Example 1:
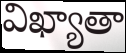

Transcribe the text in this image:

విఖ్యాతా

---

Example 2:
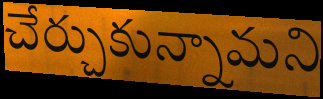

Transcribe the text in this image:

చేర్చుకున్నామని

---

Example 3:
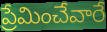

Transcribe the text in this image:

ప్రేమించేవారే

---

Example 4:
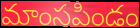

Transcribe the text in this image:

మాంసపిండం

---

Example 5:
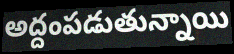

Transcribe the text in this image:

అద్దంపడుతున్నాయి